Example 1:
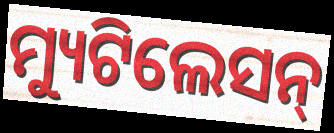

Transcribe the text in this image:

ମ୍ୟୁଟିଲେସନ୍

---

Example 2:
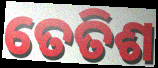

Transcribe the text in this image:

ତେତିଶ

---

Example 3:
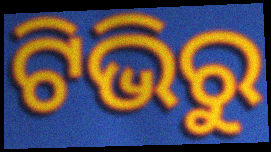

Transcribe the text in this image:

ଟିଭିରୁ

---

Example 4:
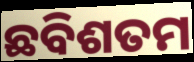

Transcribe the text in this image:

ଛବିଶତମ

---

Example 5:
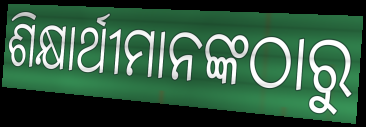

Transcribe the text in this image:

ଶିକ୍ଷାର୍ଥୀମାନଙ୍କଠାରୁ